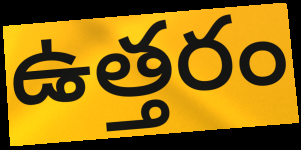
ఉత్తరం